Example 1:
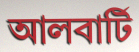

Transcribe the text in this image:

আলবার্টি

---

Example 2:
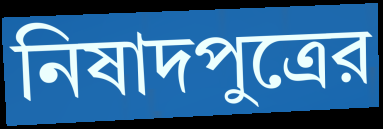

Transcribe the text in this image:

নিষাদপুত্রের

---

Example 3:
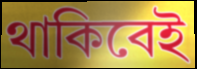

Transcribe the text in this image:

থাকিবেই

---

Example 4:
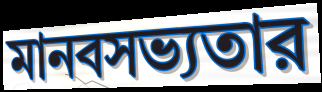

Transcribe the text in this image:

মানবসভ্যতার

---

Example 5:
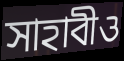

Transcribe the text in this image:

সাহাবীও